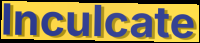
Inculcate